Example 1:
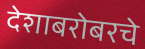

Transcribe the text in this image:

देशाबरोबरचे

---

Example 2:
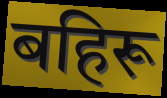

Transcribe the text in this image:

बहिरू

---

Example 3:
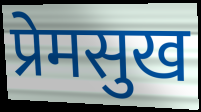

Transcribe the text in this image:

प्रेमसुख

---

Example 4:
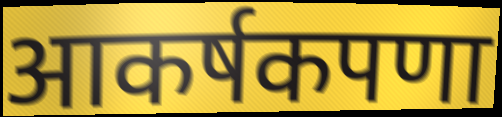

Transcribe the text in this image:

आकर्षकपणा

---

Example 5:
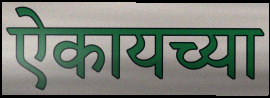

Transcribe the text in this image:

ऐकायच्या